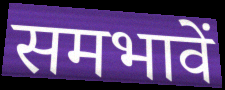
समभावें